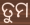
ତୁମ